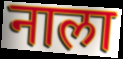
नाला